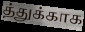
த்துக்காக